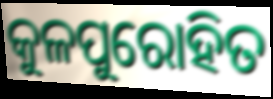
କୁଳପୁରୋହିତ